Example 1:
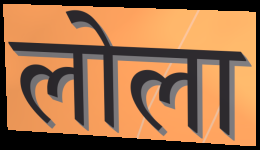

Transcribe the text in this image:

लोला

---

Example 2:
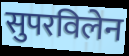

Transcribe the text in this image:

सुपरविलेन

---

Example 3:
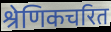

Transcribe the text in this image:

श्रेणिकचरित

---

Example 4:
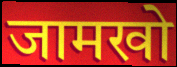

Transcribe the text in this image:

जामखो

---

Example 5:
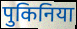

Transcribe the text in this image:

पुकिनिया